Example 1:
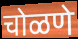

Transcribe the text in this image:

चोळणे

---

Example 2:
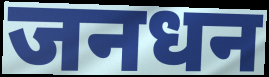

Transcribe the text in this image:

जनधन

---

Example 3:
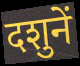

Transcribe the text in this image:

दशुनें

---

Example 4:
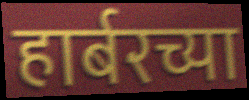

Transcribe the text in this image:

हार्बरच्या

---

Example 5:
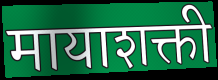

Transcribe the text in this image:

मायाशक्ती